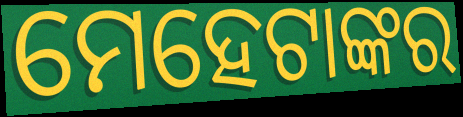
ମେହେଟାଙ୍କର